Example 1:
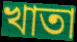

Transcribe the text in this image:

খাতা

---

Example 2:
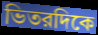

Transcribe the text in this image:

ভিতরদিকে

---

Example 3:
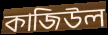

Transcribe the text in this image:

কাজিউল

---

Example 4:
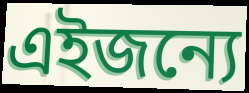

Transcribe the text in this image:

এইজন্যে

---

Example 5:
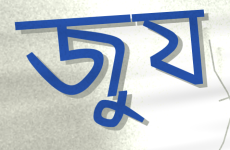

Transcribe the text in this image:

জুয